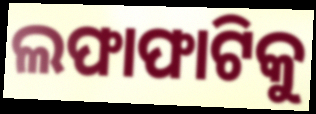
ଲଫାଫାଟିକୁ